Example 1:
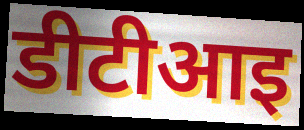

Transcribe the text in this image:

डीटीआइ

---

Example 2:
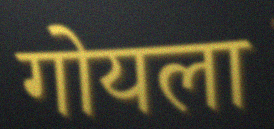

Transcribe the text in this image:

गोयला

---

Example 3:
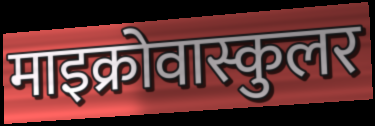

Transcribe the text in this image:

माइक्रोवास्कुलर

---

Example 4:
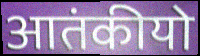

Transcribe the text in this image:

आतंकीयो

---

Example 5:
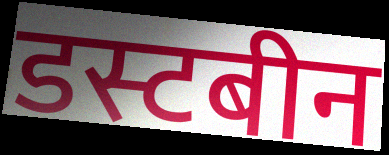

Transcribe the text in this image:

डस्टबीन